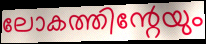
ലോകത്തിന്റേയും